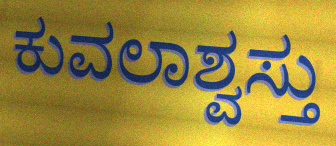
ಕುವಲಾಶ್ವಸ್ತು